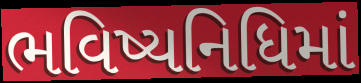
ભવિષ્યનિધિમાં